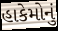
હાકેમોનું